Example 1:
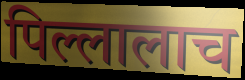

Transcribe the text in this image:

पिल्लालाच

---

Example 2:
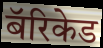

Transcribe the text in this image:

बॅरिकेड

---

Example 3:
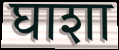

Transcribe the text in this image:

घाशा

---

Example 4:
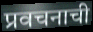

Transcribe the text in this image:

प्रवचनाची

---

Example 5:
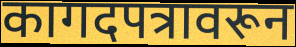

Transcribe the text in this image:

कागदपत्रावरून